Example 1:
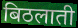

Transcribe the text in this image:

बिठलाती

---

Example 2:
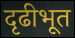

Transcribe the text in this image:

दृढीभूत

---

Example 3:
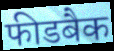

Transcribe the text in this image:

फीडबैक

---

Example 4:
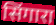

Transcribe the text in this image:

सिंगारा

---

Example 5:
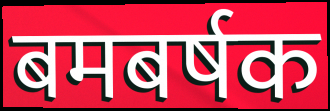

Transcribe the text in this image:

बमबर्षक